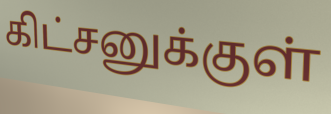
கிட்சனுக்குள்